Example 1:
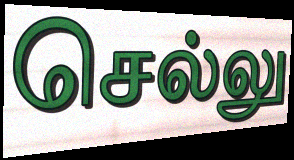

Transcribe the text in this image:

செல்லு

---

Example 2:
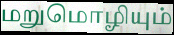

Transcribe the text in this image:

மறுமொழியும்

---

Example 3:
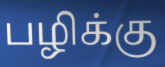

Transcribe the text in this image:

பழிக்கு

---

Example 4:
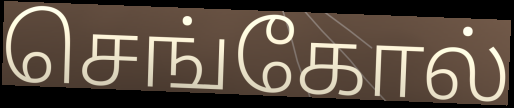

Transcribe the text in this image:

செங்கோல்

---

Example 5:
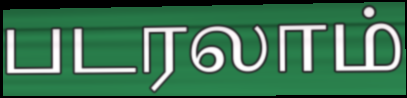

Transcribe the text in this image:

படரலாம்